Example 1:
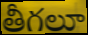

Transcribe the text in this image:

తీగలూ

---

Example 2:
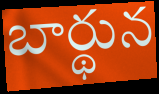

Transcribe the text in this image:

బార్థున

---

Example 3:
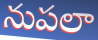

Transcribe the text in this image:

నుపలా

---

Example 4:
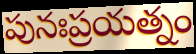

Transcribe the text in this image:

పునఃప్రయత్నం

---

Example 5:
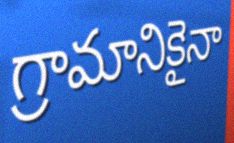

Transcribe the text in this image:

గ్రామానికైనా